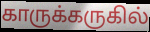
காருக்கருகில்